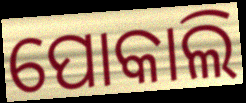
ପୋକାଲି